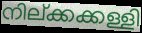
നില്ക്കക്കള്ളി